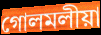
গোলমলীয়া